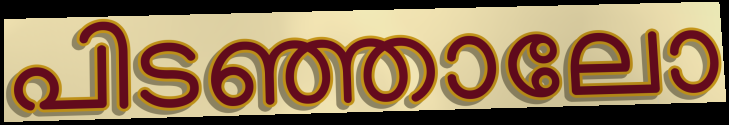
പിടഞ്ഞാലോ